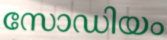
സോഡിയം